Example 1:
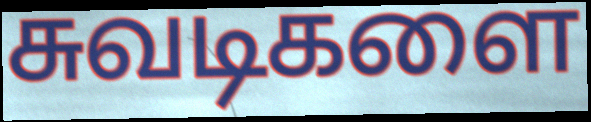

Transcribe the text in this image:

சுவடிகளை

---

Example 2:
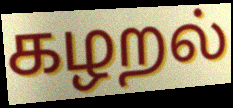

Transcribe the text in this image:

கழறல்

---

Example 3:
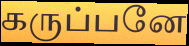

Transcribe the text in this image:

கருப்பனே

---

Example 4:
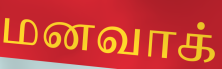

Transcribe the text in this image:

மனவாக்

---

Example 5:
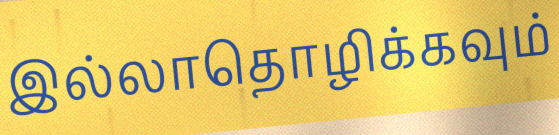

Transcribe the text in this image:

இல்லாதொழிக்கவும்